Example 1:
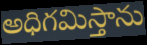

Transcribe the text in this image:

అధిగమిస్తాను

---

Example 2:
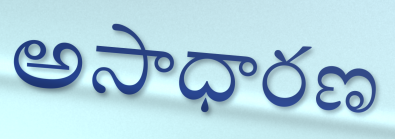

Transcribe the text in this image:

అసాధారణ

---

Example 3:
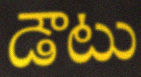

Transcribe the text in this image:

డౌటు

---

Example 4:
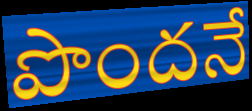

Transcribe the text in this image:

పొందనే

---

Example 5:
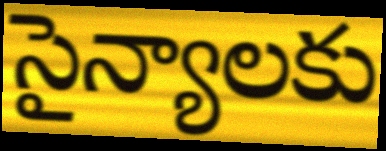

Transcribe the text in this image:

సైన్యాలకు